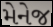
મેનેજ